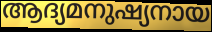
ആദ്യമനുഷ്യനായ